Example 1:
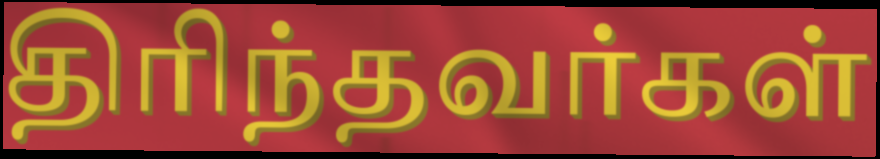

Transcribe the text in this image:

திரிந்தவர்கள்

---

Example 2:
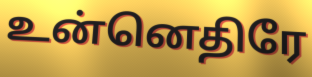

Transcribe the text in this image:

உன்னெதிரே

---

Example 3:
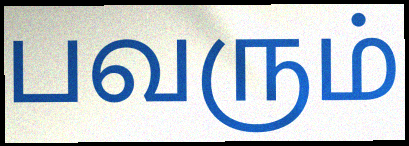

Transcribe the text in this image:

பவரும்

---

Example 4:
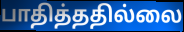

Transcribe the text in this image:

பாதித்ததில்லை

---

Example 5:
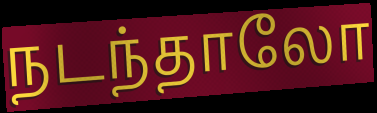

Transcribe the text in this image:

நடந்தாலோ